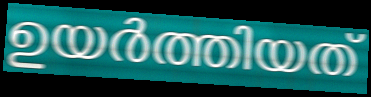
ഉയർത്തിയത്